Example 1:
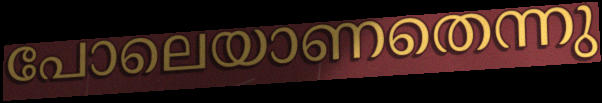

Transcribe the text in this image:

പോലെയാണതെന്നു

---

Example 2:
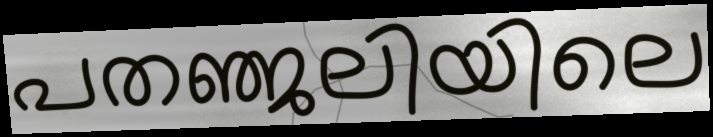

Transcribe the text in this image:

പതഞ്ജലിയിലെ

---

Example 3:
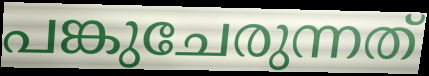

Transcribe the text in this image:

പങ്കുചേരുന്നത്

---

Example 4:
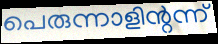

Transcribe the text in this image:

പെരുന്നാളിന്റന്ന്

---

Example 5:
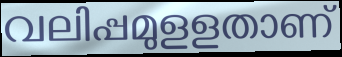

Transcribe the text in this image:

വലിപ്പമുളളതാണ്